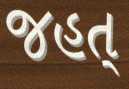
જહત્